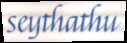
seythathu